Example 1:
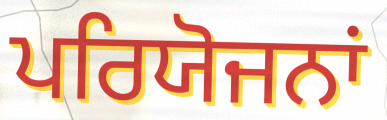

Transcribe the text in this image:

ਪਰਿਯੋਜਨਾਂ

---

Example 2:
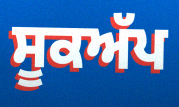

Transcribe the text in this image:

ਸੂਕਅੱਪ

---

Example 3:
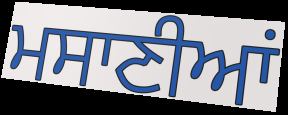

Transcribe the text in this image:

ਮਸਾਣੀਆਂ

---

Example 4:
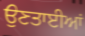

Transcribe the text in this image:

ਉਣਤਾਈਆਂ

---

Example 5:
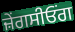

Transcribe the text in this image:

ਜ਼ੇਂਗਸੀਓਂਗ